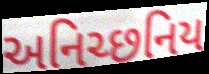
અનિચ્છનિય